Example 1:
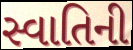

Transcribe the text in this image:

સ્વાતિની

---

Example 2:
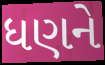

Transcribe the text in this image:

ધણને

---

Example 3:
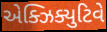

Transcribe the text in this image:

એક્ઝિક્યુટિવે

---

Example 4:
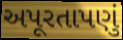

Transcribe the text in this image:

અપૂરતાપણું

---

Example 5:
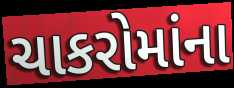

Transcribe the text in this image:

ચાકરોમાંના